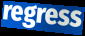
regress